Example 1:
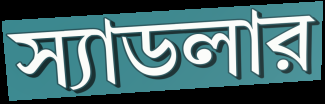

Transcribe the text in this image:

স্যাডলার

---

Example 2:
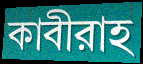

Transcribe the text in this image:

কাবীরাহ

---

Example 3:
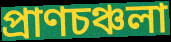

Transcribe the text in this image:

প্রাণচঞ্চলা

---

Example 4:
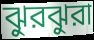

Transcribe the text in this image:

ঝুরঝুরা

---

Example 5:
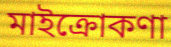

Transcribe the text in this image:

মাইক্রোকণা